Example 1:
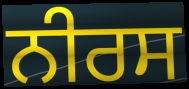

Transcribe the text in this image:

ਨੀਰਸ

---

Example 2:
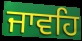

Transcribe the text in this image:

ਜਾਵਹਿ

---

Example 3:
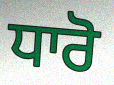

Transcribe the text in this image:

ਧਾਰੋ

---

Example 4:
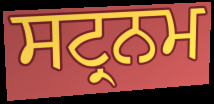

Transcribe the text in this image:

ਸਟ੍ਰਨਮ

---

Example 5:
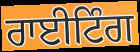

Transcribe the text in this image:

ਰਾਈਟਿੰਗ